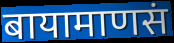
बायामाणसं